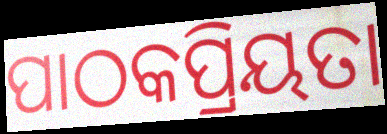
ପାଠକପ୍ରିୟତା